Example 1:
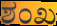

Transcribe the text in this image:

ಶಂಖ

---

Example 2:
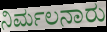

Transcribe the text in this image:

ನಿರ್ಮಲನಾರು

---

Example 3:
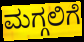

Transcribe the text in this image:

ಮಗ್ಗಲಿಗೆ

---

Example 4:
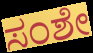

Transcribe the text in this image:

ಸಂಶೇ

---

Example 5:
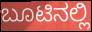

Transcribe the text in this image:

ಬೂಟಿನಲ್ಲಿ